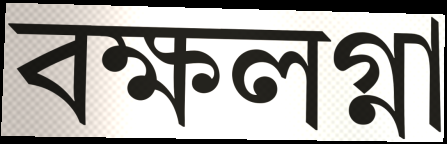
বক্ষলগ্না